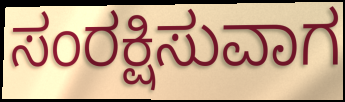
ಸಂರಕ್ಷಿಸುವಾಗ